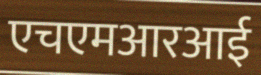
एचएमआरआई